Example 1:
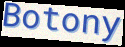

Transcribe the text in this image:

Botony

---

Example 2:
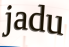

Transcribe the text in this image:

jadu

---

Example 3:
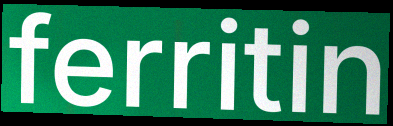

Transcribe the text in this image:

ferritin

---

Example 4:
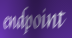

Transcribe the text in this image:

endpoint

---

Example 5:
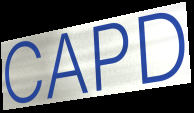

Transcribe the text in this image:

CAPD